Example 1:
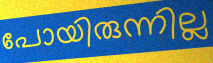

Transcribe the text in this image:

പോയിരുന്നില്ല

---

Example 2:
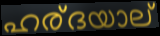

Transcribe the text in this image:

ഹര്ദയാല്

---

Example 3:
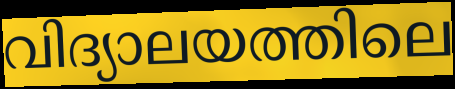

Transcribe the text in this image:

വിദ്യാലയത്തിലെ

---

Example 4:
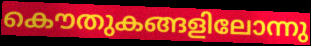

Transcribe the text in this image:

കൌതുകങ്ങളിലോന്നു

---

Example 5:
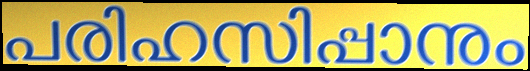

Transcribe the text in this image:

പരിഹസിപ്പാനും